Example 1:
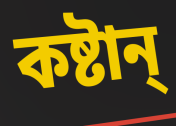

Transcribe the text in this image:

কষ্টান্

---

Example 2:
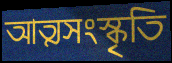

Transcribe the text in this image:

আত্মসংস্কৃতি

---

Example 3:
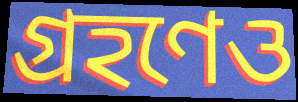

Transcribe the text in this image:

গ্রহণেও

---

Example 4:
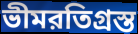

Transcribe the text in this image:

ভীমরতিগ্রস্ত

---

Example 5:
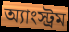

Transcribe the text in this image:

অ্যাংস্ট্রম